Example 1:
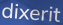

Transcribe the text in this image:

dixerit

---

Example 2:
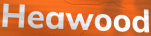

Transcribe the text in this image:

Heawood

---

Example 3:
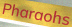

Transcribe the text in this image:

Pharaohs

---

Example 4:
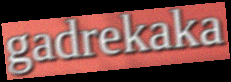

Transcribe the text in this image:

gadrekaka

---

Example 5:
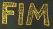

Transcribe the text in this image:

FIM